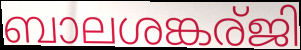
ബാലശങ്കര്ജി